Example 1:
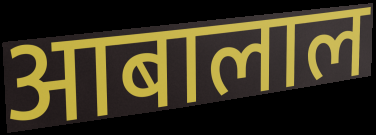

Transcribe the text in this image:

आबालाल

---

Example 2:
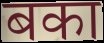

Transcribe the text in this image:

बका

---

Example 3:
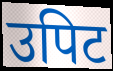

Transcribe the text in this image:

उपिट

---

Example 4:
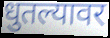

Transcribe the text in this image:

धुतल्यावर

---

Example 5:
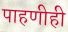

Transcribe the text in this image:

पाहणीही